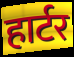
हार्टर